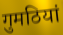
गुमठियां